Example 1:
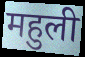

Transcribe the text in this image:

महुली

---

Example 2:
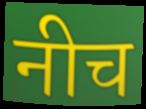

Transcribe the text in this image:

नीच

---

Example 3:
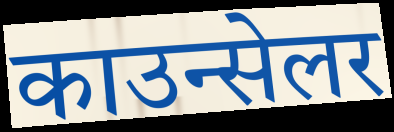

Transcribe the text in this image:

काउन्सेलर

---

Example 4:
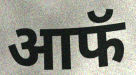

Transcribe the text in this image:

आफॅ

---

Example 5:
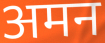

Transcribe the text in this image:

अमन